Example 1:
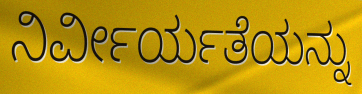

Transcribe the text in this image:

ನಿರ್ವೀರ್ಯತೆಯನ್ನು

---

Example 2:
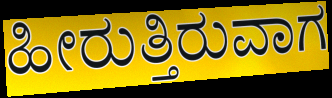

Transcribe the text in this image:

ಹೀರುತ್ತಿರುವಾಗ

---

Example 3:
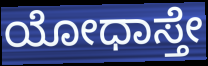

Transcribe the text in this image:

ಯೋಧಾಸ್ತೇ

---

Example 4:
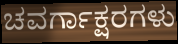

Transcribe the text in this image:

ಚವರ್ಗಾಕ್ಷರಗಳು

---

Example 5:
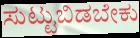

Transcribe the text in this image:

ಸುಟ್ಟುಬಿಡಬೇಕು